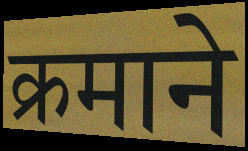
क्रमाने